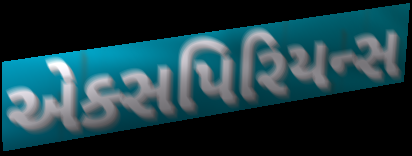
એક્સપિરિયન્સ